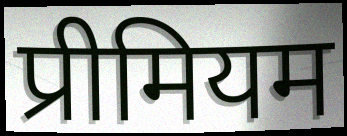
प्रीमियम